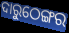
ଦାରୁଠେଙ୍ଗର